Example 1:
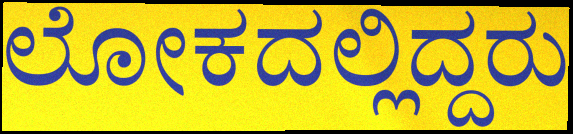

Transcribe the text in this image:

ಲೋಕದಲ್ಲಿದ್ದರು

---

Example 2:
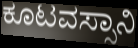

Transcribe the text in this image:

ಕೂಟವಸ್ಸಾನಿ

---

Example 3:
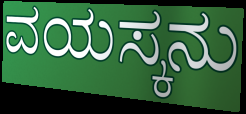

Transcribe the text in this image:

ವಯಸ್ಕನು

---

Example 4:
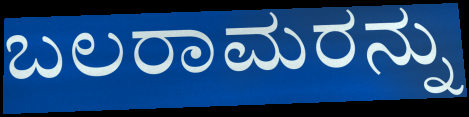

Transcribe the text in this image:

ಬಲರಾಮರನ್ನು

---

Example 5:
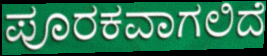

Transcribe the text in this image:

ಪೂರಕವಾಗಲಿದೆ